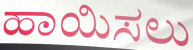
ಹಾಯಿಸಲು